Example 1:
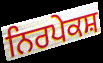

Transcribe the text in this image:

ਨਿਰਪੇਕਸ਼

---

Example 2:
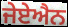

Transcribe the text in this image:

ਜੇਏਐਨ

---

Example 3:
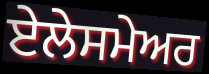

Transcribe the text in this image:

ਏਲੇਸਮੇਅਰ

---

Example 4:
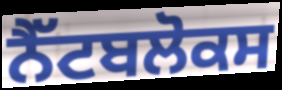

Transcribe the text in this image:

ਨੈੱਟਬਲੋਕਸ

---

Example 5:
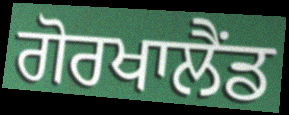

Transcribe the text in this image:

ਗੋਰਖਾਲੈਂਡ